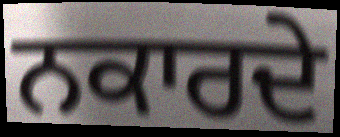
ਨਕਾਰਦੇ